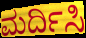
ಮರ್ದಿಸಿ